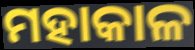
ମହାକାଳ